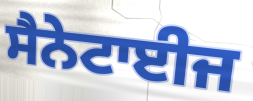
ਸੈਨੇਟਾਈਜ